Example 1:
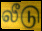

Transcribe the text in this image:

லீடு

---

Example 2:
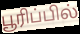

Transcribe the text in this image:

பூரிப்பில்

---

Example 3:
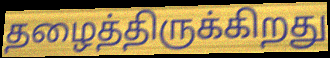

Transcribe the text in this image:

தழைத்திருக்கிறது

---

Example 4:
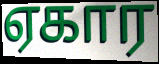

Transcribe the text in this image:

ஏகார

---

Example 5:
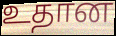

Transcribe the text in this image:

உதான